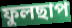
ফুলছাপ